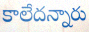
కాలేదన్నారు